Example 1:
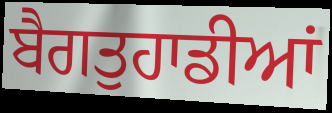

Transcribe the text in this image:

ਬੈਗਤੁਹਾਡੀਆਂ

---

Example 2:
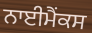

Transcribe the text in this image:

ਨਾਈਮੈਂਕਸ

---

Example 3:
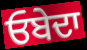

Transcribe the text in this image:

ਓਬੇਦਾ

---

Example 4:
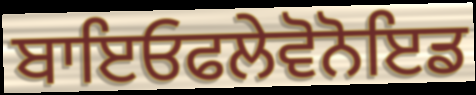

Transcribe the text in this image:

ਬਾਇਓਫਲੇਵੋਨੋਇਡ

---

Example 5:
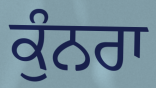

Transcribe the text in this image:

ਕੁੰਨਰਾ